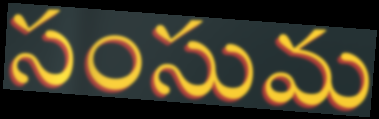
సంసుమ